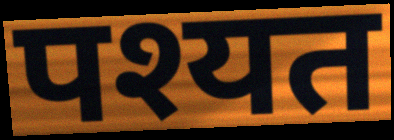
पश्यत